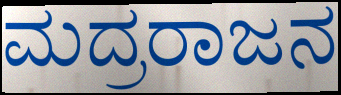
ಮದ್ರರಾಜನ